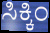
ಸಿಕ್ಕಿಂ